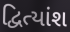
દ્વિત્યાંશ